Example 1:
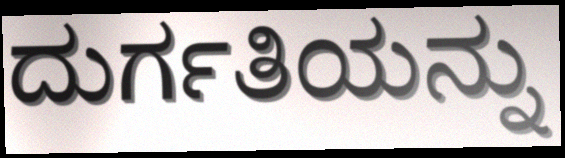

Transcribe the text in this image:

ದುರ್ಗತಿಯನ್ನು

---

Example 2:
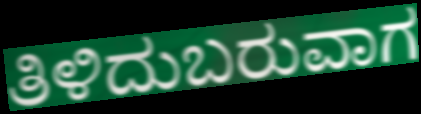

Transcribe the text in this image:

ತಿಳಿದುಬರುವಾಗ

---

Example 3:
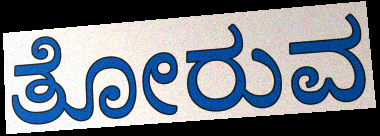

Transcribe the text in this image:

ತೋರುವ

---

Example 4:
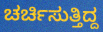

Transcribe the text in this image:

ಚರ್ಚಿಸುತ್ತಿದ್ದ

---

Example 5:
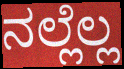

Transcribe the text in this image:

ನಲ್ಲೆಲ್ಲ